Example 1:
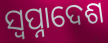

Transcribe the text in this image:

ସ୍ଵପ୍ନାଦେଶ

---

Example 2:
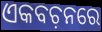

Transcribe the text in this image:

ଏକବଚ଼ନରେ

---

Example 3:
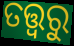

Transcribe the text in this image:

ତତ୍ତ୍ୱରୁ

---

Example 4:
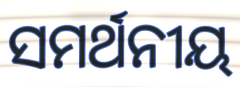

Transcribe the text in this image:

ସମର୍ଥନୀୟ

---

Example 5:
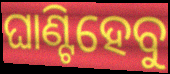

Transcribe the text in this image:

ଘାଣ୍ଟିହେବୁ